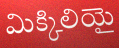
మిక్కిలియై